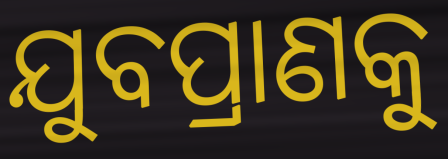
ଯୁବପ୍ରାଣକୁ